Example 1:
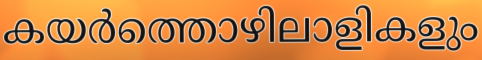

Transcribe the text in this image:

കയർത്തൊഴിലാളികളും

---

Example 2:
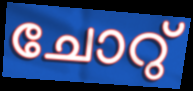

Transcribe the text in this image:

ചോറു്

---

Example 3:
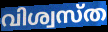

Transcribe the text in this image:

വിശ്വസ്ത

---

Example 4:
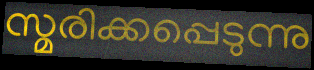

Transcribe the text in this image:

സ്മരിക്കപ്പെടുന്നു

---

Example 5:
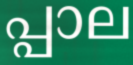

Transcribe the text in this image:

പ്പാല